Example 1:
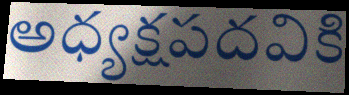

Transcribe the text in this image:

అధ్యక్షపదవికి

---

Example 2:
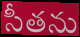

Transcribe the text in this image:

సీతను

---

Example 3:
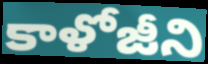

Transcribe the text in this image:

కాళోజీని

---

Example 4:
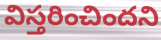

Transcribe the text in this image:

విస్తరించిందని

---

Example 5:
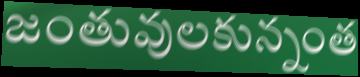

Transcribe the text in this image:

జంతువులకున్నంత